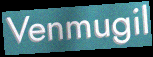
Venmugil